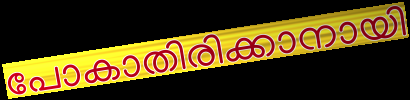
പോകാതിരിക്കാനായി